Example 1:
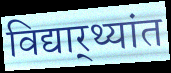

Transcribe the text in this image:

विद्यार्थ्यांत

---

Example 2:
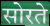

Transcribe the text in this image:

सोरते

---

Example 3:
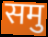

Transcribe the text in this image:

समु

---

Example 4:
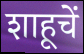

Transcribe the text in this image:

शाहूचें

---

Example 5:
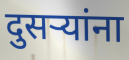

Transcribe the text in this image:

दुसर्‍यांना